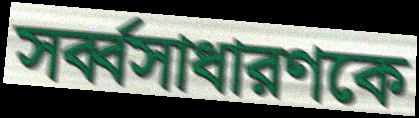
সর্ব্বসাধারণকে